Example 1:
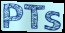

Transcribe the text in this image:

PTs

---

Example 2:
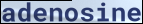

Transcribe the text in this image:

adenosine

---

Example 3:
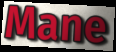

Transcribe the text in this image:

Mane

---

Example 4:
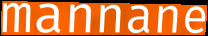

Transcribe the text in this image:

mannane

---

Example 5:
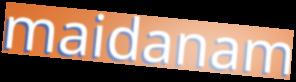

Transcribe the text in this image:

maidanam